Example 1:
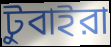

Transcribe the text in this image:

টুবাইরা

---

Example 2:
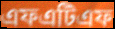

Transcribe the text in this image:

এফএটিএফ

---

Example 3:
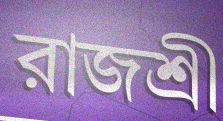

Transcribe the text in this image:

রাজশ্রী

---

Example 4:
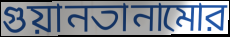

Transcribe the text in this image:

গুয়ানতানামোর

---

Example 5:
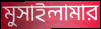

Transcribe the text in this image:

মুসাইলামার